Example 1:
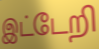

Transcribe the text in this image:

இட்டேறி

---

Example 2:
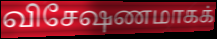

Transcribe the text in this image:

விசேஷணமாகக்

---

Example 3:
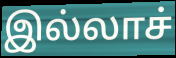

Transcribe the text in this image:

இல்லாச்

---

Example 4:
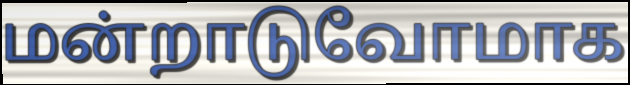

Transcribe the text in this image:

மன்றாடுவோமாக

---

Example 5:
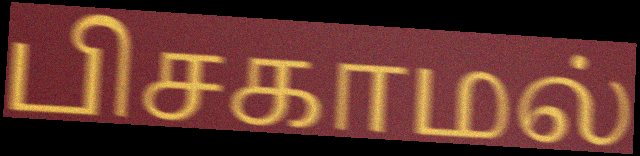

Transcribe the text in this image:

பிசகாமல்